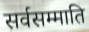
सर्वसम्माति